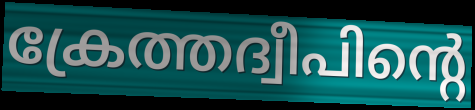
ക്രേത്തദ്വീപിന്റെ